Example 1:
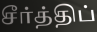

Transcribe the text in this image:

சீர்த்திப்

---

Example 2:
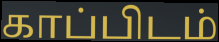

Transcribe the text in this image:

காப்பிடம்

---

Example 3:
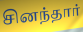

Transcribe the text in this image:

சினந்தார்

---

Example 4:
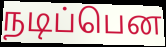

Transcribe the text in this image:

நடிப்பென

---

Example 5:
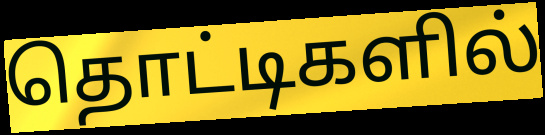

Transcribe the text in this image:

தொட்டிகளில்